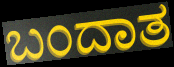
ಬಂದಾತ